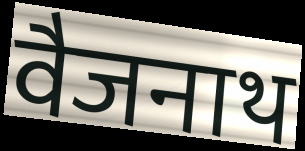
वैजनाथ